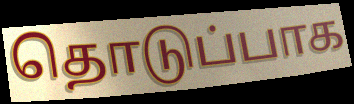
தொடுப்பாக